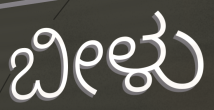
ಬೀಳು